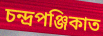
চন্দ্ৰপঞ্জিকাত